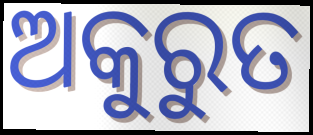
ଅକୁରୁତ